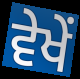
ਵੇਖੇਂ